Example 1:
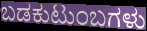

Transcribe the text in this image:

ಬಡಕುಟುಂಬಗಳು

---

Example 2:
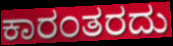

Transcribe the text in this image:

ಕಾರಂತರದು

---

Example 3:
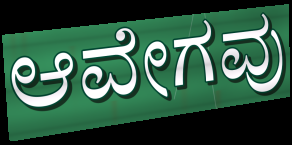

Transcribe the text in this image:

ಆವೇಗವು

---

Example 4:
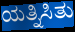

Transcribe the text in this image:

ಯತ್ನಿಸಿತು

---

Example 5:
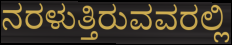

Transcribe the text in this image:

ನರಳುತ್ತಿರುವವರಲ್ಲಿ